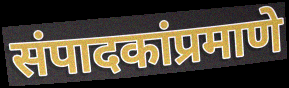
संपादकांप्रमाणे